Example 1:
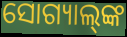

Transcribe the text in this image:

ସୋଗ୍ୟାଲ୍‌ଙ୍କ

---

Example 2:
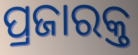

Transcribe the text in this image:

ପ୍ରଜାରକ୍ତ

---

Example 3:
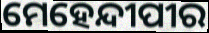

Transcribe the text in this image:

ମେହେନ୍ଦୀପୀର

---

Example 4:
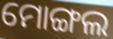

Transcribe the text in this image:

ମୋଙ୍ଗଲ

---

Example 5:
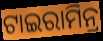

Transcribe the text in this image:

ଟାଇରାମିନ୍ର